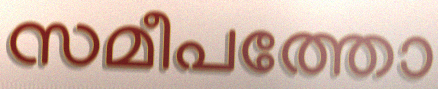
സമീപത്തോ